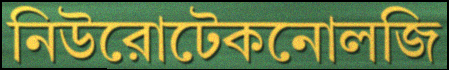
নিউরোটেকনোলজি